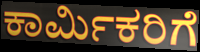
ಕಾರ್ಮಿಕರಿಗೆ